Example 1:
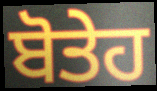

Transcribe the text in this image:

ਬੋਤੇਹ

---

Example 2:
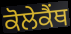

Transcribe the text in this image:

ਕੋਲੇਕੈਂਥ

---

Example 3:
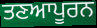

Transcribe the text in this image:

ਤਣਆਪੂਰਨ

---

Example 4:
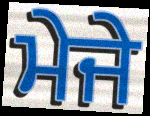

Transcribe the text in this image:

ਮੇਜੇ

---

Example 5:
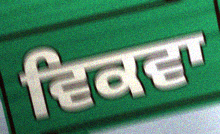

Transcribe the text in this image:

ਵਿਕਵਾ